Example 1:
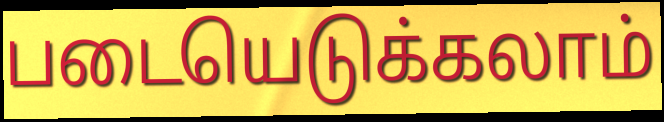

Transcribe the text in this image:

படையெடுக்கலாம்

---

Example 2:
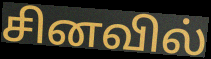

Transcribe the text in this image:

சினவில்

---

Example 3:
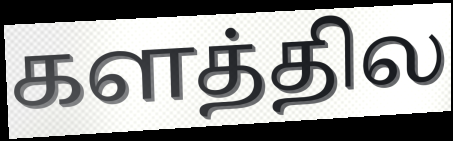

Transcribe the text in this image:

களத்தில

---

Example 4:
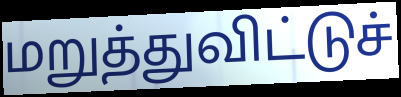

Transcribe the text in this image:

மறுத்துவிட்டுச்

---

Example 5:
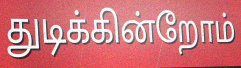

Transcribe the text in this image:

துடிக்கின்றோம்